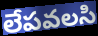
లేపవలసి